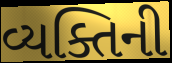
વ્યક્તિની